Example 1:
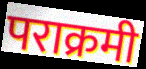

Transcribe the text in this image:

पराक्रमी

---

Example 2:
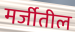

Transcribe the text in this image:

मर्जीतील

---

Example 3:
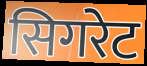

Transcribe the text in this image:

सिगरेट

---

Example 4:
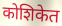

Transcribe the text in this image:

कोशिकेत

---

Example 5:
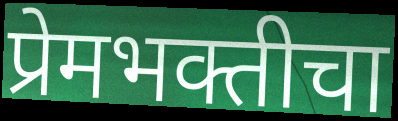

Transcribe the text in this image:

प्रेमभक्तीचा